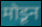
मोडून